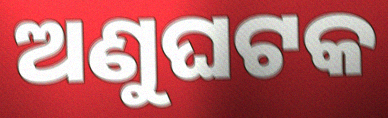
ଅଣୁଘଟକ